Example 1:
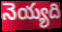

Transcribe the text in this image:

నెయ్యది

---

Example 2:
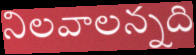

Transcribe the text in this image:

నిలవాలన్నది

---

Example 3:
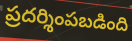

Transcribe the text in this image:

ప్రదర్శింపబడింది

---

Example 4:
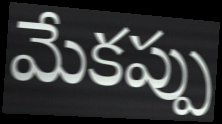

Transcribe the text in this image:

మేకప్పు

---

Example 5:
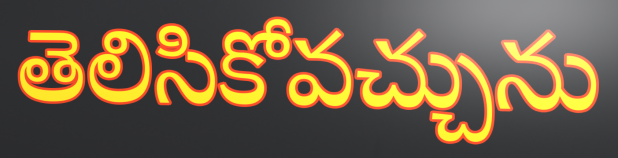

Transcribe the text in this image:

తెలిసికోవచ్చును